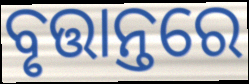
ବୃତ୍ତାନ୍ତରେ